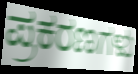
ಪ್ರಕರಣಗಳು